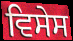
ਵਿਸੇਸ